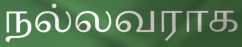
நல்லவராக